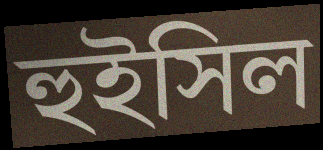
হুইসিল